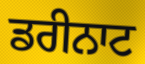
ਡਰੀਨਾਟ